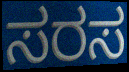
ಸರಸ